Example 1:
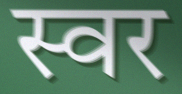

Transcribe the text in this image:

स्‍वर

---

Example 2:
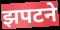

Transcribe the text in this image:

झपटने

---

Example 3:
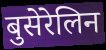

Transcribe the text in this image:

बुसेरेलिन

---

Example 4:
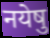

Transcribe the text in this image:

नयेषु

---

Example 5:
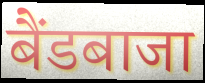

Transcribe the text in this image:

बैंडबाजा